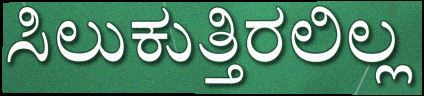
ಸಿಲುಕುತ್ತಿರಲಿಲ್ಲ